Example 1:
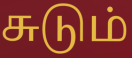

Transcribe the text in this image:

சுடும்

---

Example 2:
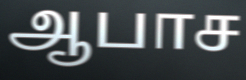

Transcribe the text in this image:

ஆபாச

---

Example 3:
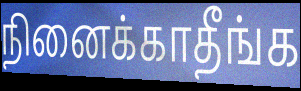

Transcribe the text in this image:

நினைக்காதீங்க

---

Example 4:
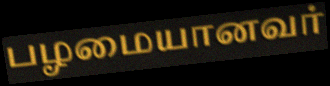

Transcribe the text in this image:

பழமையானவர்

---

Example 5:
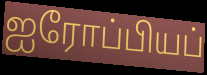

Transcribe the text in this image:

ஐரோப்பியப்